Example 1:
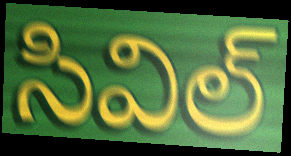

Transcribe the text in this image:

సివిల్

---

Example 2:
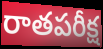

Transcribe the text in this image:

రాతపరీక్ష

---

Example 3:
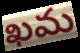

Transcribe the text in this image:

ఖమ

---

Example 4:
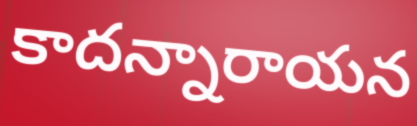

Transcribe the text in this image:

కాదన్నారాయన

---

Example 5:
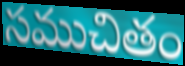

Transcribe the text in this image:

సముచితం